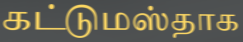
கட்டுமஸ்தாக